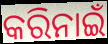
କରିନାଇଁ